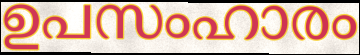
ഉപസംഹാരം